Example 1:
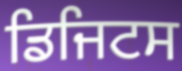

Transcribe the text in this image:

ਡਿਜਿਟਸ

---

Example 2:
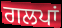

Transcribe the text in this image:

ਗਲਪਾਂ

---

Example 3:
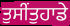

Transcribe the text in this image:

ਤੁਸੀਂਤੁਹਾਡੇ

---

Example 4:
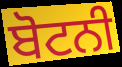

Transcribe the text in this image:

ਬੋਟਨੀ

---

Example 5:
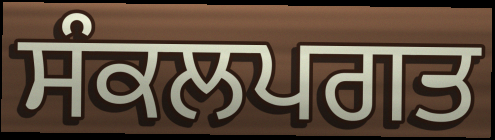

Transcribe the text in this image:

ਸੰਕਲਪਗਤ